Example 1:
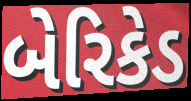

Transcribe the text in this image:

બેરિકેડ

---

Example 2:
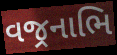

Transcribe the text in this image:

વજ્રનાભિ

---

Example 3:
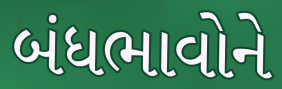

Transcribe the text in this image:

બંધભાવોને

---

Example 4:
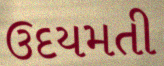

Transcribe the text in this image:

ઉદયમતી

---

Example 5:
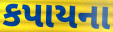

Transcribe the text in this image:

કપાયના